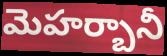
మెహర్బానీ